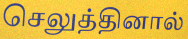
செலுத்தினால்